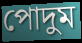
পোদুম